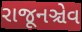
રાજૂનઞ્ચેવ